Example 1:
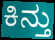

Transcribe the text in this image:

ಕಿನ್ತು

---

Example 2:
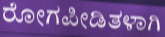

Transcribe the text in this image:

ರೋಗಪೀಡಿತಳಾಗಿ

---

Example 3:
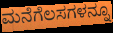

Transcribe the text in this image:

ಮನೆಗೆಲಸಗಳನ್ನೂ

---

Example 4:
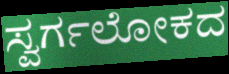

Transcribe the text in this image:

ಸ್ವರ್ಗಲೋಕದ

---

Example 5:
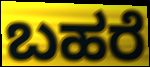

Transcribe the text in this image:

ಬಹರೆ